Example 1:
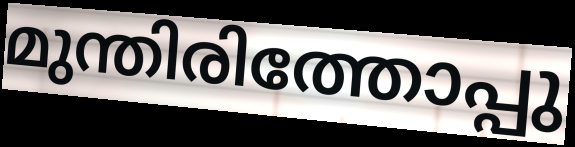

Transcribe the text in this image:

മുന്തിരിത്തോപ്പു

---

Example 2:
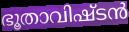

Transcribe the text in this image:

ഭൂതാവിഷ്ടൻ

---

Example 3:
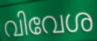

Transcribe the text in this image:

വിവേശ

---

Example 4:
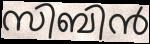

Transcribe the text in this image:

സിബിൻ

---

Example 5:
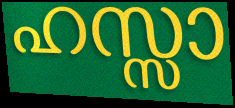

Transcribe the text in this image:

ഹസ്സാ